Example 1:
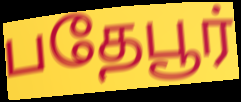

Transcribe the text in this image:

பதேபூர்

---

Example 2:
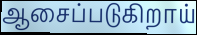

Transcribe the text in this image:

ஆசைப்படுகிறாய்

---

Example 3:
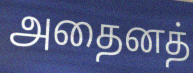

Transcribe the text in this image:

அதைனத்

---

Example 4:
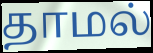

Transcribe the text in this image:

தாமல்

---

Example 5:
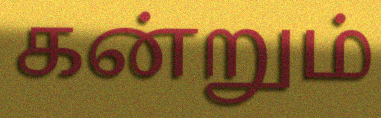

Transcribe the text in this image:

கன்றும்